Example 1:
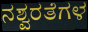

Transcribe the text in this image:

ನಶ್ವರತೆಗಳ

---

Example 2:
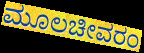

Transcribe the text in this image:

ಮೂಲಚೀವರಂ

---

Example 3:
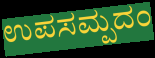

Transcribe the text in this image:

ಉಪಸಮ್ಪದಂ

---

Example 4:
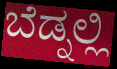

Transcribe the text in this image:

ಬೆಡ್ನಲ್ಲಿ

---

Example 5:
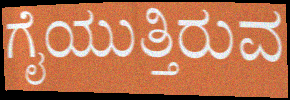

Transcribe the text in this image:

ಗೈಯುತ್ತಿರುವ